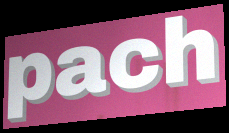
pach